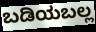
ಬಡಿಯಬಲ್ಲ